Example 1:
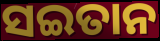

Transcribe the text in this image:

ସଇତାନ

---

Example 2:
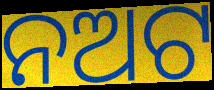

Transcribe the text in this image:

ନଅଟ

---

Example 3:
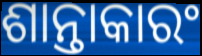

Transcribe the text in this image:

ଶାନ୍ତାକାରଂ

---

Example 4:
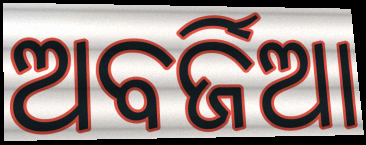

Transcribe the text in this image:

ଅବର୍ଜିଆ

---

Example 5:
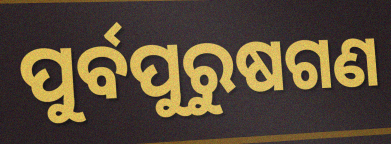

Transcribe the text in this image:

ପୁର୍ବପୁରୁଷଗଣ